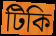
টিকি